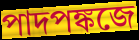
পাদপঙ্কজে